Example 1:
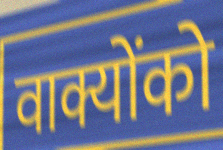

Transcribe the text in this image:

वाक्योंको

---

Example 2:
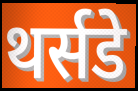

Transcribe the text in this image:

थर्सडे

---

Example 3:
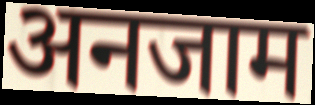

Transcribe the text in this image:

अनजाम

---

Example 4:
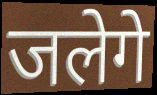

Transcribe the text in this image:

जलेगे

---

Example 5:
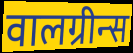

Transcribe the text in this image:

वालग्रीन्स